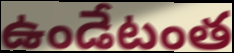
ఉండేటంత